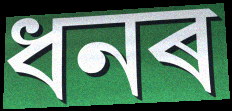
ধনৰ